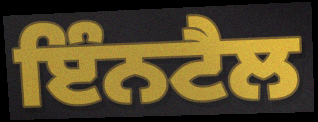
ਇੰਨਟੈਲ